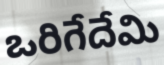
ఒరిగేదేమి